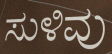
ಸುಳಿವು